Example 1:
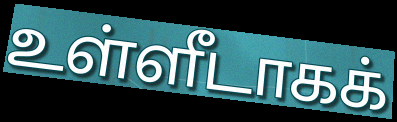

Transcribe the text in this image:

உள்ளீடாகக்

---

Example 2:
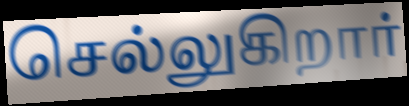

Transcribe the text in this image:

செல்லுகிறார்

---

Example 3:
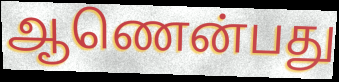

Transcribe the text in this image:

ஆணென்பது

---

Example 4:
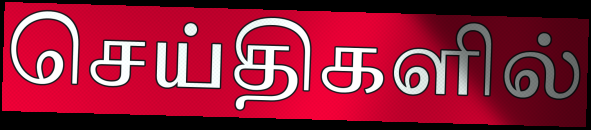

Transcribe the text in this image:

செய்திகளில்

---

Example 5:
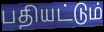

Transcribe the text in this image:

பதியட்டும்